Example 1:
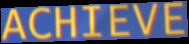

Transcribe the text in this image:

ACHIEVE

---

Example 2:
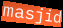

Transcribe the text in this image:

masjid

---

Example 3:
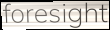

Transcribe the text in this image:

foresight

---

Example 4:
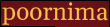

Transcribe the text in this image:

poornima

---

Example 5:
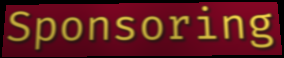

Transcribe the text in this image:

Sponsoring